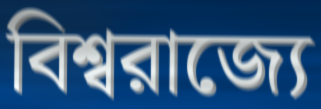
বিশ্বরাজ্যে